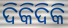
ଦିକିଦିକି